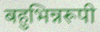
बहुभिन्नरूपी